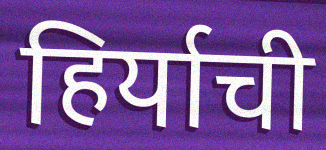
हिर्याची